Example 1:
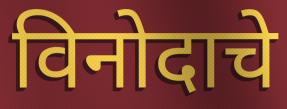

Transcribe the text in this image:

विनोदाचे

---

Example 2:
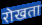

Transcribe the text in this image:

रोखता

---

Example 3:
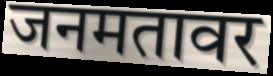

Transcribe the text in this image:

जनमतावर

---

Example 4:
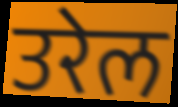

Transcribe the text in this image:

उरेल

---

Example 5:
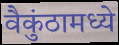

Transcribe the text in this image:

वैकुंठामध्ये